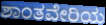
ಶಾಂತವೇರಿಯ